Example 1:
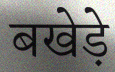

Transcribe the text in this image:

बखेड़े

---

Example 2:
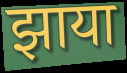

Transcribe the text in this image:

झाया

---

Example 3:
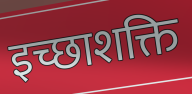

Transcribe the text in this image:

इच्छाशक्ति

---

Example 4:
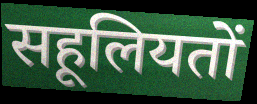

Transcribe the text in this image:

सहूलियतों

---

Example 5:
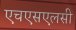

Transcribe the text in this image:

एचएसएलसी